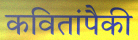
कवितांपैकी